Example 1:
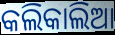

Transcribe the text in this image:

କଲିକାଲିଆ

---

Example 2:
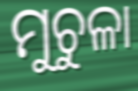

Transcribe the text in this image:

ମୁଚୁଳା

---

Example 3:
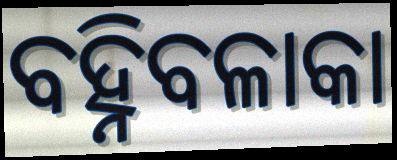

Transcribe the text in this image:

ବହ୍ନିବଳାକା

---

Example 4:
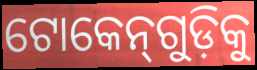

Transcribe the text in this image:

ଟୋକେନ୍‌ଗୁଡ଼ିକୁ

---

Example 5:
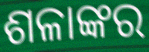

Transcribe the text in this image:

ଶଳାଙ୍କର